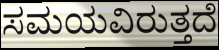
ಸಮಯವಿರುತ್ತದೆ